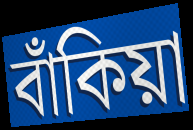
বাঁকিয়া